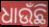
ଧାଉଁଛି